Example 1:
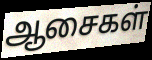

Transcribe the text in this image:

ஆசைகள்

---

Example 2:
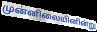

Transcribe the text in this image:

முன்னிலையினின்று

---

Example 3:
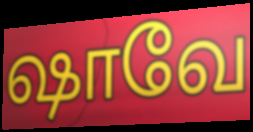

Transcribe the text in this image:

ஷாவே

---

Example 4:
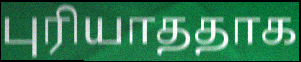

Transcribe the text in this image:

புரியாததாக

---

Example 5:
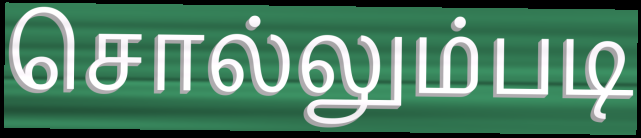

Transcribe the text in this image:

சொல்லும்படி